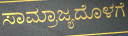
ಸಾಮ್ರಾಜ್ಯದೊಳಗೆ